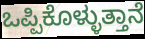
ಒಪ್ಪಿಕೊಳ್ಳುತ್ತಾನೆ